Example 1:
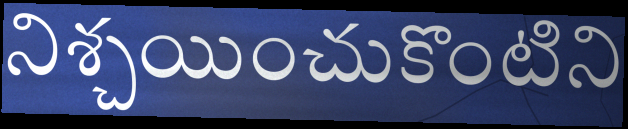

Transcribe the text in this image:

నిశ్చయించుకొంటిని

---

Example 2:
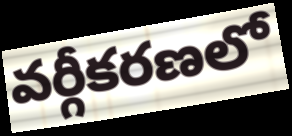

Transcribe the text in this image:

వర్గీకరణలో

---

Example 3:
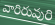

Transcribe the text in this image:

వారిరువురి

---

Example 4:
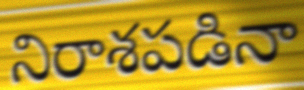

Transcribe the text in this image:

నిరాశపడినా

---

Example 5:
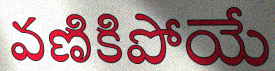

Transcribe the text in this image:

వణికిపోయే